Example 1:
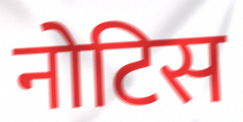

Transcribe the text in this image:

नोटिस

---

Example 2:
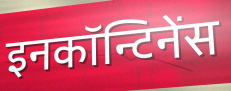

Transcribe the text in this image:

इनकॉन्टिनेंस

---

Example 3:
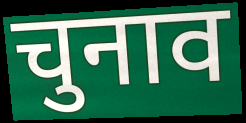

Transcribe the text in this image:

चुनाव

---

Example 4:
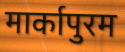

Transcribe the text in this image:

मार्कापुरम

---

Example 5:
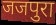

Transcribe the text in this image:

जजपुरा